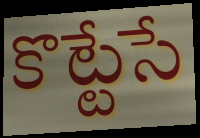
కొట్టేసే